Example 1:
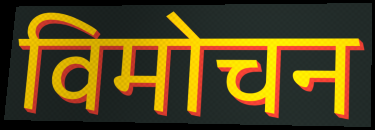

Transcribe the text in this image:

विमोचन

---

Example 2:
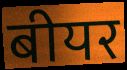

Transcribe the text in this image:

बीयर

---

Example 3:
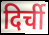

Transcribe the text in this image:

दिर्ची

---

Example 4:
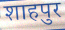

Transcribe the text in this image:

शाहपुर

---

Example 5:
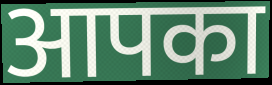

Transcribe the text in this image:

आपका